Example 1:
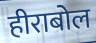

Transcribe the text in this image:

हीराबोल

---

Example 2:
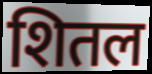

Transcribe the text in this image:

शितल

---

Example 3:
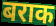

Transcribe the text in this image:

बराक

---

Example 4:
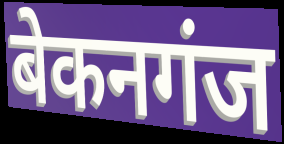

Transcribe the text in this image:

बेकनगंज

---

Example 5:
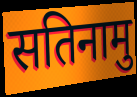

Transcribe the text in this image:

सतिनामु